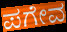
ಪಗೇವ